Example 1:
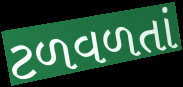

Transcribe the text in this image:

ટળવળતાં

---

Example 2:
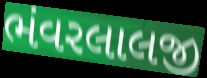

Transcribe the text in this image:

ભંવરલાલજી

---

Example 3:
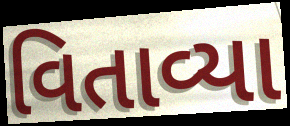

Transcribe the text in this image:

વિતાવ્યા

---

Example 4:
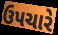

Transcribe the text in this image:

ઉપચારે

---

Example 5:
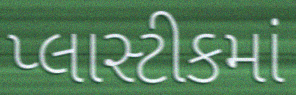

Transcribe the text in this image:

પ્લાસ્ટીકમાં